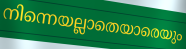
നിന്നെയല്ലാതെയാരെയും